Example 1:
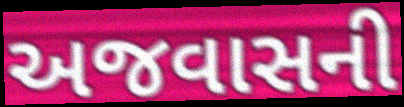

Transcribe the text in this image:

અજવાસની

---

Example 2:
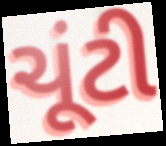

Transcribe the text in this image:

ચૂંટી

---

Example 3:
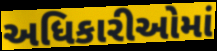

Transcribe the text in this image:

અધિકારીઓમાં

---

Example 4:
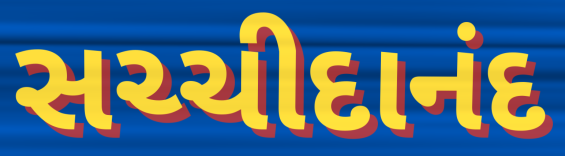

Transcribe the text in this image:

સચ્ચીદાનંદ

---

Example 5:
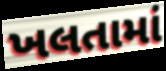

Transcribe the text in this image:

ખલતામાં